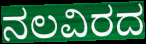
ನಲವಿರದ